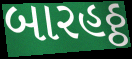
બારહઠ્ઠ